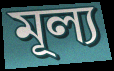
মূল্য়